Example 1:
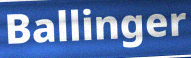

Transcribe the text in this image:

Ballinger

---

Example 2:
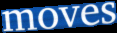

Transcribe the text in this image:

moves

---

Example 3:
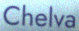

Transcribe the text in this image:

Chelva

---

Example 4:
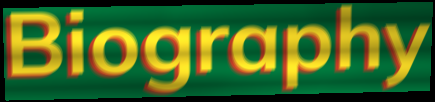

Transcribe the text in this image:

Biography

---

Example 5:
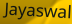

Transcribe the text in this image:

Jayaswal